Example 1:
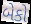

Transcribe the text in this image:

બેકો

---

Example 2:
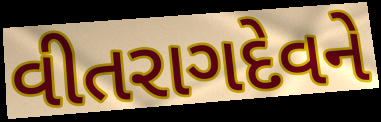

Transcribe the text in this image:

વીતરાગદેવને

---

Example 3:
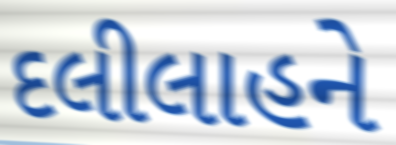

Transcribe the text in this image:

દલીલાહને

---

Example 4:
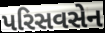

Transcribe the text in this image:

પરિસવસેન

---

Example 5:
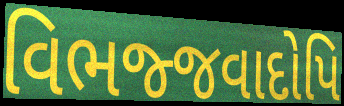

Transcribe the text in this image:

વિભજ્જવાદોપિ